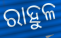
ରାହୁଳ